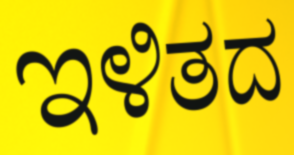
ಇಳಿತದ